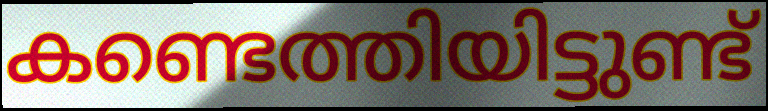
കണ്ടെത്തിയിട്ടുണ്ട്